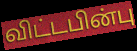
விட்டபின்பு